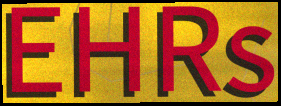
EHRs